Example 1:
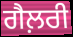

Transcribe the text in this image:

ਗੈਲ਼ਰੀ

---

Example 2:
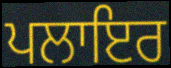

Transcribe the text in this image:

ਪਲਾਇਰ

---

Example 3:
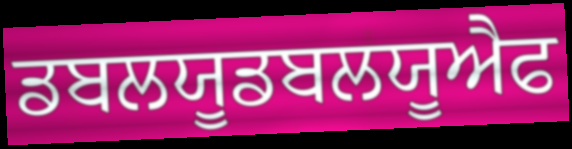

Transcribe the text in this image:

ਡਬਲਯੂਡਬਲਯੂਐਫ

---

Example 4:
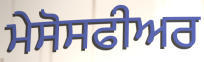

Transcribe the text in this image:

ਮੇਸੋਸਫੀਅਰ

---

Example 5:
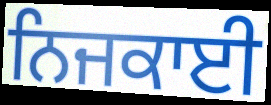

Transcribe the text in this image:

ਨਿਜਕਾਈ